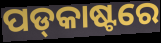
ପଡ୍‌କାଷ୍ଟରେ